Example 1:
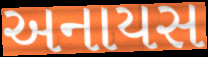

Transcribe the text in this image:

અનાયસ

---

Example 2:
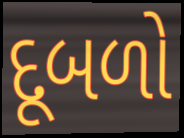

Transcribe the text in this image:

દૂબળો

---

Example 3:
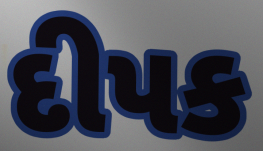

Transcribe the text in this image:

દીપક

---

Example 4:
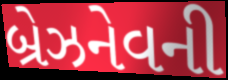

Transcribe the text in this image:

બ્રેઝનેવની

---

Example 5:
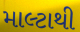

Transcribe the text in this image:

માલ્ટાથી